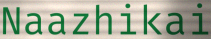
Naazhikai